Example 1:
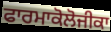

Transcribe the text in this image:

ਫਾਰਮਾਕੋਲੋਜੀਕਾ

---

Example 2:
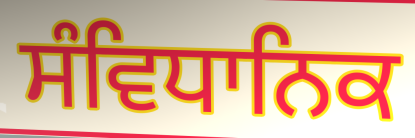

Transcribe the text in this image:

ਸੰਵਿਧਾਨਿਕ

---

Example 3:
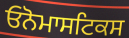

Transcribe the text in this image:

ਓਨੋਮਾਸਟਿਕਸ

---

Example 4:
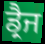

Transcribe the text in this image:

ਡ੍ਰੈਜ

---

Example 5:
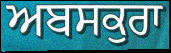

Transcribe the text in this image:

ਅਬਸਕੁਰਾ